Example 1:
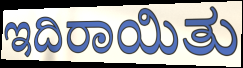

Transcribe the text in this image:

ಇದಿರಾಯಿತು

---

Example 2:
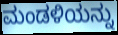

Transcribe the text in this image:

ಮಂಡಳಿಯನ್ನು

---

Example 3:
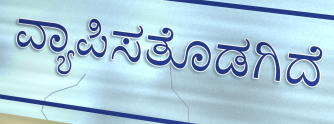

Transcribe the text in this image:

ವ್ಯಾಪಿಸತೊಡಗಿದೆ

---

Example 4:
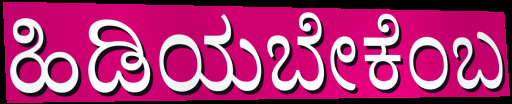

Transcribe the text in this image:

ಹಿಡಿಯಬೇಕೆಂಬ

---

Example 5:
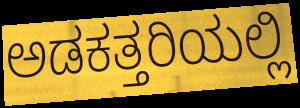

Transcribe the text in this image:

ಅಡಕತ್ತರಿಯಲ್ಲಿ